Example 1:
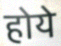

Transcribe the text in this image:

होये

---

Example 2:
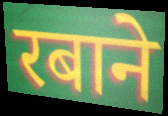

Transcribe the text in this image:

रबाने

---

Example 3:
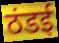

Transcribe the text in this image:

ठंडई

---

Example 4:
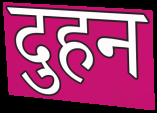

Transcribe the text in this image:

दुहन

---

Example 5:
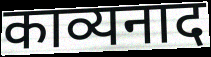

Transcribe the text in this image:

काव्यनाद